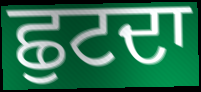
ਛੁਟਦਾ